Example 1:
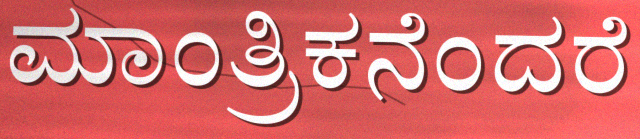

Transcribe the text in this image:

ಮಾಂತ್ರಿಕನೆಂದರೆ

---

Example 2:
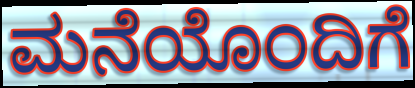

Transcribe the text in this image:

ಮನೆಯೊಂದಿಗೆ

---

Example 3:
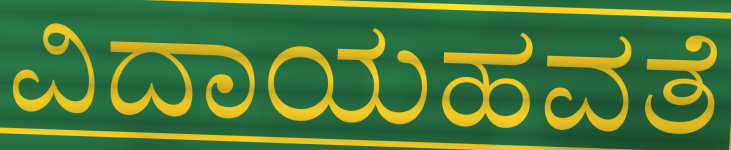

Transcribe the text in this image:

ವಿದಾಯಹವತೆ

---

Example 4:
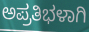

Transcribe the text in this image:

ಅಪ್ರತಿಭಳಾಗಿ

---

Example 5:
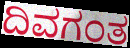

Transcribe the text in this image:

ದಿವಗಂತ